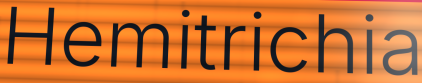
Hemitrichia